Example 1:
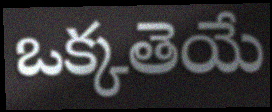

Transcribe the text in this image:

ఒక్కతెయే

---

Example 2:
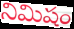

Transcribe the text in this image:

నిమిషం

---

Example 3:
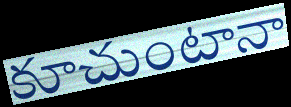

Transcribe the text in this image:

కూచుంటానా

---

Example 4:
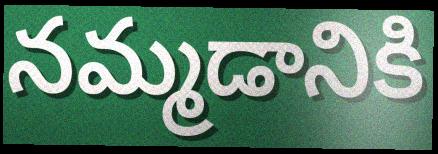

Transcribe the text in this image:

నమ్మడానికి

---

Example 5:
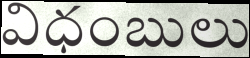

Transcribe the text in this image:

విధంబులు